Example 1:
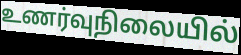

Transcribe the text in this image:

உணர்வுநிலையில்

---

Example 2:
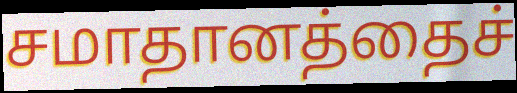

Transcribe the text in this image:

சமாதானத்தைச்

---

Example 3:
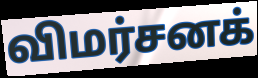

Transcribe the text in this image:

விமர்சனக்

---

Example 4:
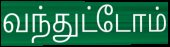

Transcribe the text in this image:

வந்துட்டோம்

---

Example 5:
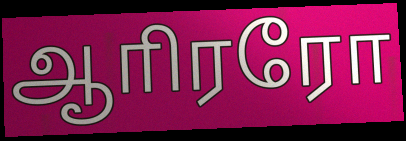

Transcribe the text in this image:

ஆரிரரோ